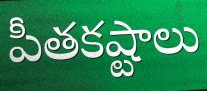
పీతకష్టాలు